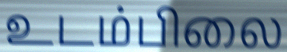
உடம்பிலை